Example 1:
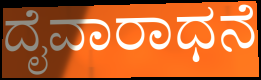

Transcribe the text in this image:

ದೈವಾರಾಧನೆ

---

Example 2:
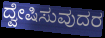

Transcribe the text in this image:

ದ್ವೇಷಿಸುವುದರ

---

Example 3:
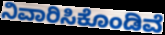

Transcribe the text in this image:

ನಿವಾರಿಸಿಕೊಂಡಿವೆ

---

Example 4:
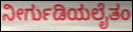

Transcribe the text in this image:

ನೀರ್ಗುಡಿಯಲೈತಂ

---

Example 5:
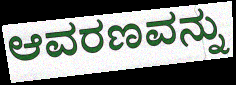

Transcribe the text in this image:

ಆವರಣವನ್ನು